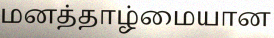
மனத்தாழ்மையான